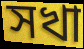
সখা